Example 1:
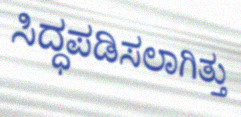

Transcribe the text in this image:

ಸಿದ್ಧಪಡಿಸಲಾಗಿತ್ತು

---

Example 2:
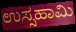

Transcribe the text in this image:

ಉಸ್ಸಹಾಮಿ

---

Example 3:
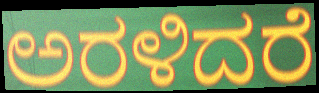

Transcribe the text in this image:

ಅರಳಿದರೆ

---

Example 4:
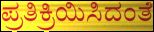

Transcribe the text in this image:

ಪ್ರತಿಕ್ರಿಯಿಸಿದಂತೆ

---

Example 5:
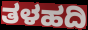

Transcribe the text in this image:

ತಳಹದಿ